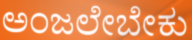
ಅಂಜಲೇಬೇಕು